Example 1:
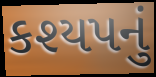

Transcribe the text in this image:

કશ્યપનું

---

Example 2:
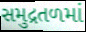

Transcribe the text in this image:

સમુદ્રતળમાં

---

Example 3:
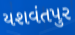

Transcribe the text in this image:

યશવંતપુર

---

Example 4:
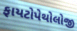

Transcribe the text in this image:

ફાયટોપેથોલોજી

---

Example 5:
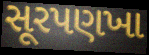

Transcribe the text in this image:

સૂરપણખા